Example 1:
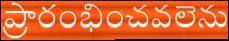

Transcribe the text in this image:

ప్రారంభించవలెను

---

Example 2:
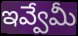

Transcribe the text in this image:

ఇవ్వేమీ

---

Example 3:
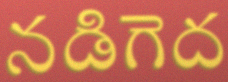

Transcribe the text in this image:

నడిగెద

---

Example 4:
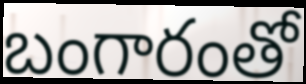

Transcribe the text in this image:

బంగారంతో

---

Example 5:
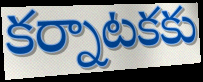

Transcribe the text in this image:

కర్నాటకకు